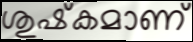
ശുഷ്‌കമാണ്